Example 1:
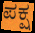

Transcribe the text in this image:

ಪಕ್ಷ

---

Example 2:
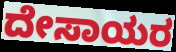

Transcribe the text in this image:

ದೇಸಾಯರ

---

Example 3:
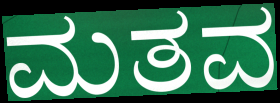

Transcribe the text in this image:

ಮತವ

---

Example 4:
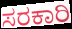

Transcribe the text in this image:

ಸರಕಾರಿ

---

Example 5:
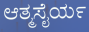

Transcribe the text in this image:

ಆತ್ಮಸೈರ್ಯ